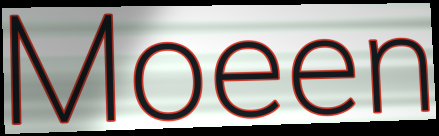
Moeen